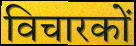
विचारकों